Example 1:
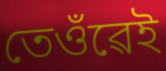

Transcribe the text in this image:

তেওঁৱেই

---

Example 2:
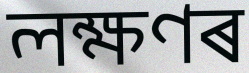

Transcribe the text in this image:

লক্ষণৰ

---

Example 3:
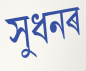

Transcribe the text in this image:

সুধনৰ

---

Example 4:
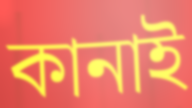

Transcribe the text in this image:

কানাই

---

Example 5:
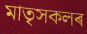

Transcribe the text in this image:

মাতৃসকলৰ